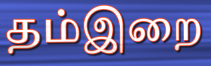
தம்இறை